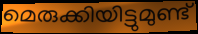
മെരുക്കിയിട്ടുമുണ്ട്